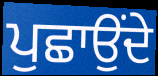
ਪੁਛਾਉਂਦੇ